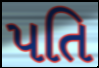
પતિ